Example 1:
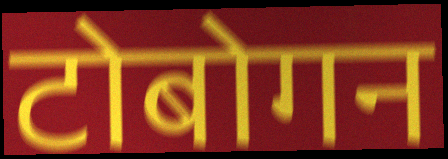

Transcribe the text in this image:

टोबोगन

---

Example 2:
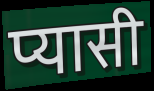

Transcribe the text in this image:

प्यासी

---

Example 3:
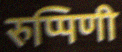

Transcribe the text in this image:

रुप्पिणी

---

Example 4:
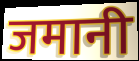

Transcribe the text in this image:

जमानी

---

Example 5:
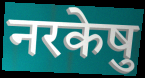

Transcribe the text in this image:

नरकेषु